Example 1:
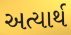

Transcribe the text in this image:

અત્યાર્થ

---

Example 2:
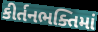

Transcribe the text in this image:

કીર્તનભક્તિમાં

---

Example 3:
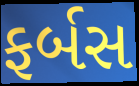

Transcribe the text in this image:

ફર્બસ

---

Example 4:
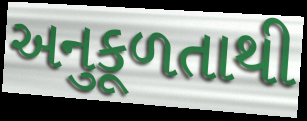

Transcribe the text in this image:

અનુકૂળતાથી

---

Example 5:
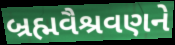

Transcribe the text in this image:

બ્રહ્મવૈશ્રવણને